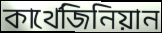
কার্থেজিনিয়ান